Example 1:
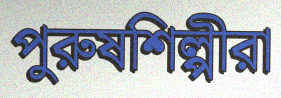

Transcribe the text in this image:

পুরুষশিল্পীরা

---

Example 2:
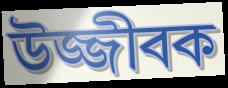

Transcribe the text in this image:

উজ্জীবক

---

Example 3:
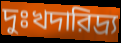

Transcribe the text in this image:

দুঃখদারিদ্র্য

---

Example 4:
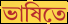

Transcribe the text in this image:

ভাষিতে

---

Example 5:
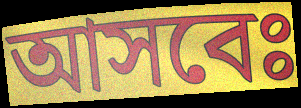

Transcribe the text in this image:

আসবেঃ